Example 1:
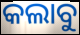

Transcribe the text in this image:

କଲାବୁ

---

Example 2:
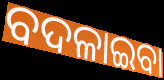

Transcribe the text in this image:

ବଦଳାଇବା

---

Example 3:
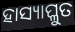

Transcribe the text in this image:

ହାସ୍ୟାପ୍ଳୁତ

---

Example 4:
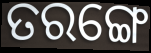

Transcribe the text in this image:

ତରଙ୍ଗେ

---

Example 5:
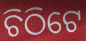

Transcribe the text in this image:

ଚିଠିଟେ